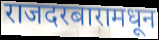
राजदरबारामधून